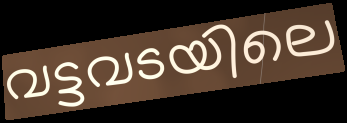
വട്ടവടയിലെ